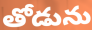
తోడును